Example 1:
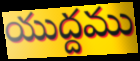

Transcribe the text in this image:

యుద్దము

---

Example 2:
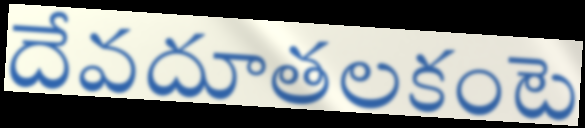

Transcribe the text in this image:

దేవదూతలకంటె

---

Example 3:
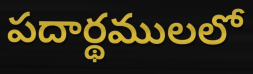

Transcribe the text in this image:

పదార్థములలో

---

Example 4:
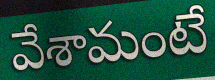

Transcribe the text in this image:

వేశామంటే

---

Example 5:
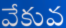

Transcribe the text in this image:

వేకువ